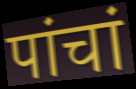
पांचां